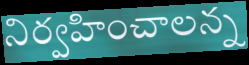
నిర్వహించాలన్న